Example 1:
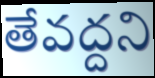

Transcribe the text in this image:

తేవద్దని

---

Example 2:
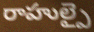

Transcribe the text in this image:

రాహుల్పై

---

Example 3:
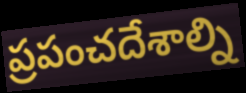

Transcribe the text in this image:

ప్రపంచదేశాల్ని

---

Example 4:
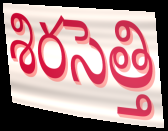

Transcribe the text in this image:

శిరసెత్తి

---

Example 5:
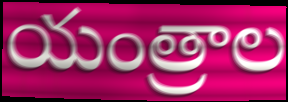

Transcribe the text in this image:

యంత్రాల